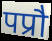
पप्रौ